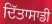
ਦਿੱਤਾਸਾਡੀ